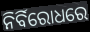
ନିର୍ବିରୋଧରେ